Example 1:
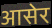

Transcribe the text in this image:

आसेर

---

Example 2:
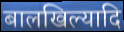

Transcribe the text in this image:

बालखिल्यादि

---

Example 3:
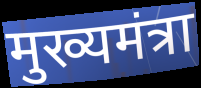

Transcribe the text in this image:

मुख्यमंत्रा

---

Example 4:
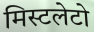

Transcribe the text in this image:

मिस्टलेटो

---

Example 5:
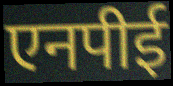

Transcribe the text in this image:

एनपीई